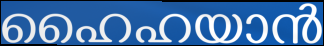
ഹൈഹയാൻ